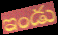
ఇండు